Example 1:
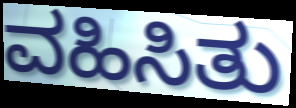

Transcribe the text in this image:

ವಹಿಸಿತು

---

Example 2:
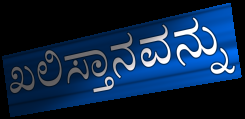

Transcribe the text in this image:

ಖಲಿಸ್ತಾನವನ್ನು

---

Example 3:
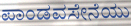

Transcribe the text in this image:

ಪಾಂಡವಸೇನೆಯು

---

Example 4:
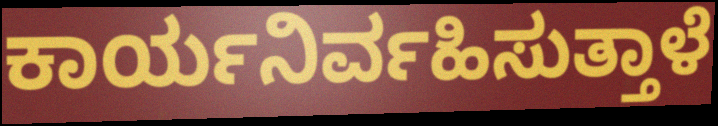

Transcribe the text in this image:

ಕಾರ್ಯನಿರ್ವಹಿಸುತ್ತಾಳೆ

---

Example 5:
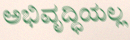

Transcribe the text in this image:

ಅಭಿವೃದ್ಧಿಯಲ್ಲ